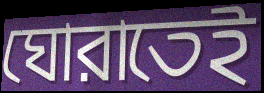
ঘোরাতেই